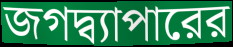
জগদ্ব্যাপারের